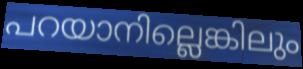
പറയാനില്ലെങ്കിലും